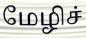
மேழிச்